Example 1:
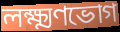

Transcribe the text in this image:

লক্ষ্মণভোগ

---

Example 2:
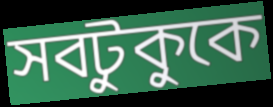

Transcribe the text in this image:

সবটুকুকে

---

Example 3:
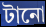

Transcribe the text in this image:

টানো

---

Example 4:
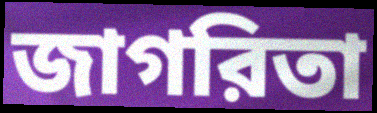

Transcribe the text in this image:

জাগরিতা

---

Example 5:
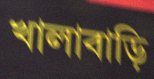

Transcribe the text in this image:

খালাবাড়ি